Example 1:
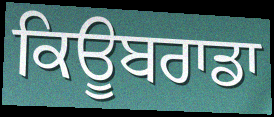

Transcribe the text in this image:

ਕਿਊਬਰਾਡਾ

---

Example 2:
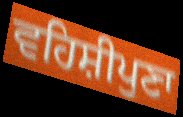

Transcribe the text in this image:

ਵਹਿਸ਼ੀਪੁਣਾ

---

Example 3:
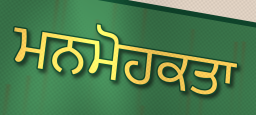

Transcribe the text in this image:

ਮਨਮੋਹਕਤਾ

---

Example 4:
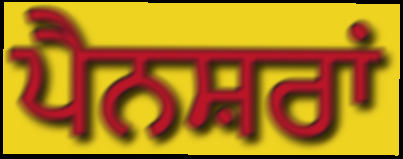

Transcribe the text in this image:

ਪੈਨਸ਼ਰਾਂ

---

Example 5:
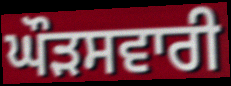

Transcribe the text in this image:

ਘੌੜਸਵਾਰੀ